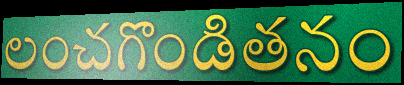
లంచగొండితనం